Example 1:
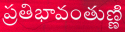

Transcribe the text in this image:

ప్రతిభావంతుణ్ణి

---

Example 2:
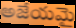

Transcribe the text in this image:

అజేయమై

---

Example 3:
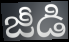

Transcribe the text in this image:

జీడి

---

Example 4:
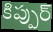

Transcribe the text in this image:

కిప్పుర్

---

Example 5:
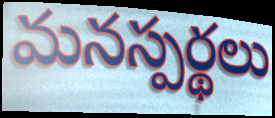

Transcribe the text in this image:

మనస్పర్థలు